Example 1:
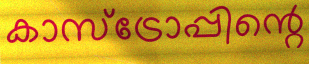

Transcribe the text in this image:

കാസ്ട്രോപ്പിന്റെ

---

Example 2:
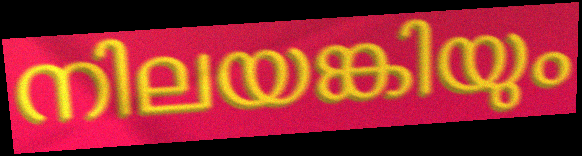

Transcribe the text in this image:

നിലയങ്കിയും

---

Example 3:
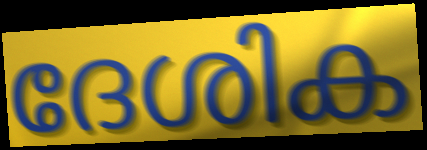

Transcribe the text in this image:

ദേശിക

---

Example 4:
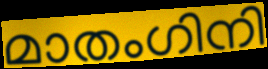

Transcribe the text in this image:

മാതംഗിനി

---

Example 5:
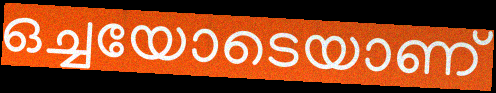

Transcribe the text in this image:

ഒച്ചയോടെയാണ്